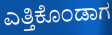
ಎತ್ತಿಕೊಂಡಾಗ